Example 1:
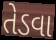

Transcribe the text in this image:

તેડવા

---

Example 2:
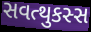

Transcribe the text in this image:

સવત્થુકસ્સ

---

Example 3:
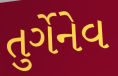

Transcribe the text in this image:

તુર્ગેનેવ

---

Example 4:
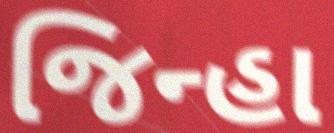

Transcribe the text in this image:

જિન્હા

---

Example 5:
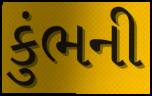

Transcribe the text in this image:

કુંભની